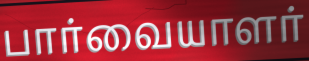
பார்வையாளர்